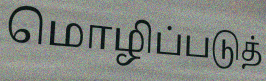
மொழிப்படுத்